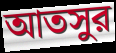
আতসুর